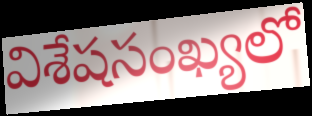
విశేషసంఖ్యలో